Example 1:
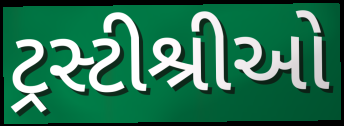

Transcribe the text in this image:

ટ્રસ્ટીશ્રીઓ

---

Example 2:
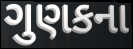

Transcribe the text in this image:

ગુણકના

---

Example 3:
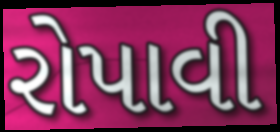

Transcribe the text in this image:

રોપાવી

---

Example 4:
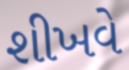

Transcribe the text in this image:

શીખવે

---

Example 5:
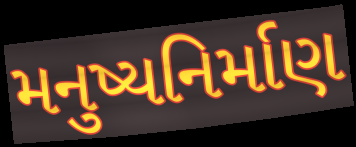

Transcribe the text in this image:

મનુષ્યનિર્માણ